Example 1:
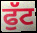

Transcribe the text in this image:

ਫੁੱਟ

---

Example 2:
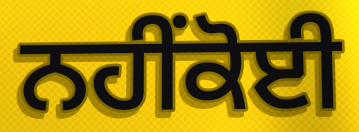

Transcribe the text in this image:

ਨਹੀਂਕੋਈ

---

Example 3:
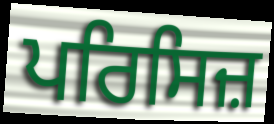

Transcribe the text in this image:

ਪਰਿਸਿਜ਼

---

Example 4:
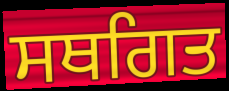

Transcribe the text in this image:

ਸਥਗਿਤ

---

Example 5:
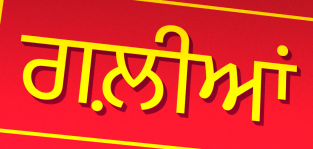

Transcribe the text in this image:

ਗਲ਼ੀਆਂ